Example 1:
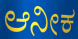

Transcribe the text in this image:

ಆನೀಕ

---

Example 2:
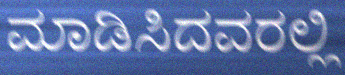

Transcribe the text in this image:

ಮಾಡಿಸಿದವರಲ್ಲಿ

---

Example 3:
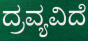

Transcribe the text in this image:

ದ್ರವ್ಯವಿದೆ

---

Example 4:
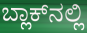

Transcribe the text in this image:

ಬ್ಲಾಕ್‌ನಲ್ಲಿ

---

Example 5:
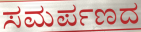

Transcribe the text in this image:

ಸಮರ್ಪಣದ